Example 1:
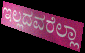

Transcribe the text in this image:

ಇಲ್ಲದವರೆಲ್ಲಾ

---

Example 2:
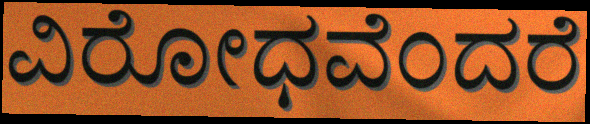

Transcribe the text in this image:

ವಿರೋಧವೆಂದರೆ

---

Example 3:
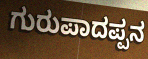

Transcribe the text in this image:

ಗುರುಪಾದಪ್ಪನ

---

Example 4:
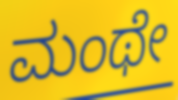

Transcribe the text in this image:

ಮಂಥೇ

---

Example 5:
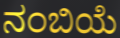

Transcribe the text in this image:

ನಂಬಿಯೆ